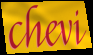
chevi